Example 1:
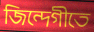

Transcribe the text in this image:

জিন্দেগীতে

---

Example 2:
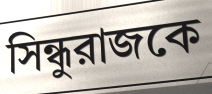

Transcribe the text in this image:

সিন্ধুরাজকে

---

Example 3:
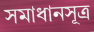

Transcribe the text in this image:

সমাধানসূত্র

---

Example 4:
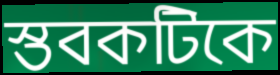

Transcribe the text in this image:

স্তবকটিকে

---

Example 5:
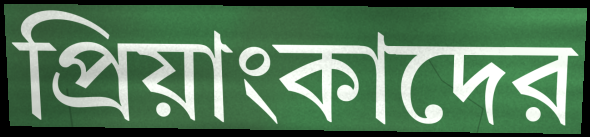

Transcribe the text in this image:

প্রিয়াংকাদের